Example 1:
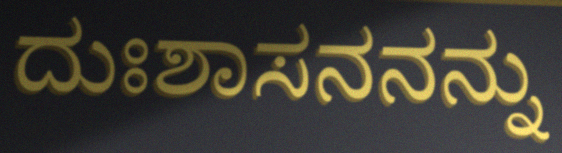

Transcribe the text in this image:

ದುಃಶಾಸನನನ್ನು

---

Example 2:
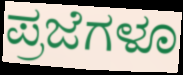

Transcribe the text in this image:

ಪ್ರಜೆಗಳೂ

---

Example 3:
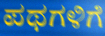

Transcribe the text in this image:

ಪಥಗಳಿಗೆ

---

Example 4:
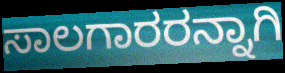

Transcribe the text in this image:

ಸಾಲಗಾರರನ್ನಾಗಿ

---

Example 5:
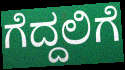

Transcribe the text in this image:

ಗೆದ್ದಲಿಗೆ